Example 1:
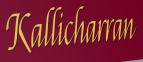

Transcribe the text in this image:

Kallicharran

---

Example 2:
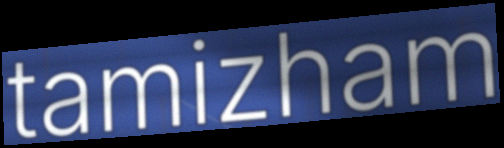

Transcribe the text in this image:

tamizham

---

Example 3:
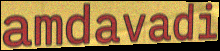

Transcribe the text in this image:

amdavadi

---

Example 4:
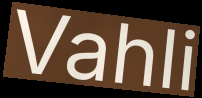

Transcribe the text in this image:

Vahli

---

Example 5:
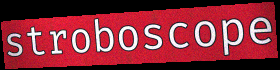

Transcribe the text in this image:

stroboscope